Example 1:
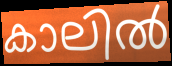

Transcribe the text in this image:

കാലിൽ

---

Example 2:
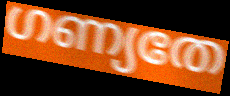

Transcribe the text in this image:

ഗണ്യതേ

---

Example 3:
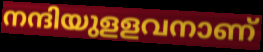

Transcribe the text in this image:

നന്ദിയുളളവനാണ്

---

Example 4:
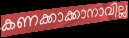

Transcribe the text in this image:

കണക്കാക്കാനാവില്ല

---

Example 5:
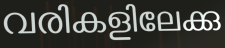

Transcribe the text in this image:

വരികളിലേക്കു